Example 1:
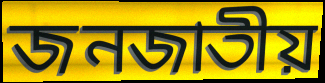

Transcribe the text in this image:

জনজাতীয়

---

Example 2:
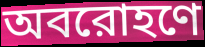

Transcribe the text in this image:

অবরোহণে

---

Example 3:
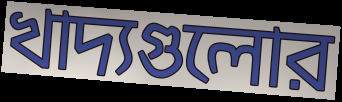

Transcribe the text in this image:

খাদ্যগুলোর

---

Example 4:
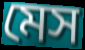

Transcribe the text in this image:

মেস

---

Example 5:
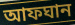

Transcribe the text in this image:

আফঘান